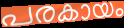
പരകായം